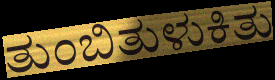
ತುಂಬಿತುಳುಕಿತು